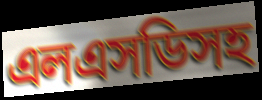
এলএসডিসহ